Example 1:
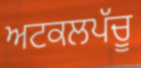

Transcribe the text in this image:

ਅਟਕਲਪੱਚੂ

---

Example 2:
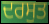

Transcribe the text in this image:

ਦਰਸੁਤ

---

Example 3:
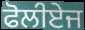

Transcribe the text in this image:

ਫੋਲੀਏਜ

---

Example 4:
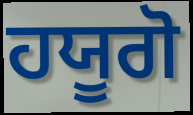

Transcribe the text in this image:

ਹਯੂਗੋ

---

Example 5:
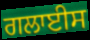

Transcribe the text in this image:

ਗਲਾਈਸ